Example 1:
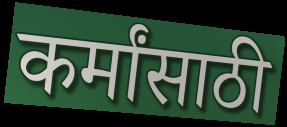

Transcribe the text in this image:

कर्मांसाठी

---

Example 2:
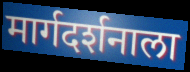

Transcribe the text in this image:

मार्गदर्शनाला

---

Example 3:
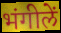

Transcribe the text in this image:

भंगीलें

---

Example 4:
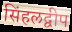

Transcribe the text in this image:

सिंहलद्वीप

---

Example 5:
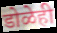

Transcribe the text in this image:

डोळेही